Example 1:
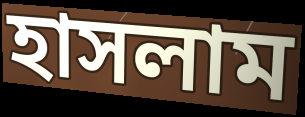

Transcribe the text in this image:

হাসলাম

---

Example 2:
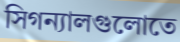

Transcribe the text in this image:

সিগন্যালগুলোতে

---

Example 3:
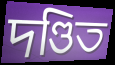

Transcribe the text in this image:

দণ্ডিত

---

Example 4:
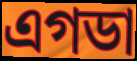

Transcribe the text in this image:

এগডা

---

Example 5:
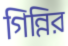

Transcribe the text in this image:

গিন্নির